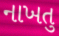
નાખતુ